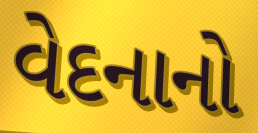
વેદનાનો